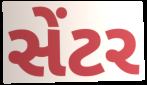
સેંટર